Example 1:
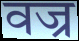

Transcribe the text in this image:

वज्र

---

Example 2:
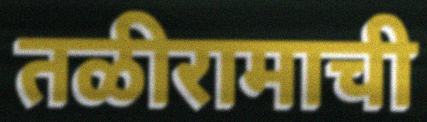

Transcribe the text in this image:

तळीरामाची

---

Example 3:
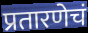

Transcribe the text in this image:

प्रतारणेचं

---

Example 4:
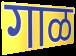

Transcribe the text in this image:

गाळ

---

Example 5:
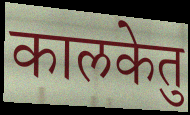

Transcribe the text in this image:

कालकेतु